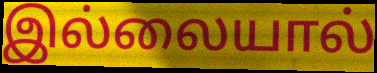
இல்லையால்